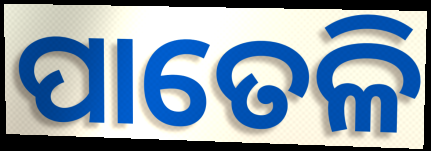
ପାତେଳି